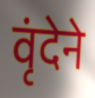
वृंदेने